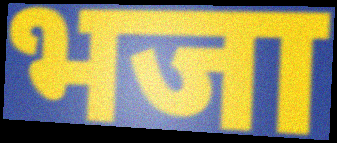
भजा